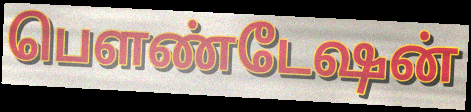
பௌண்டேஷன்